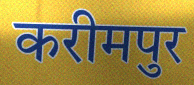
करीमपुर